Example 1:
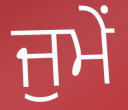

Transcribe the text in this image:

ਜੁਮੇਂ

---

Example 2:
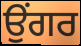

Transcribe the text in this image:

ਉਂਗਰ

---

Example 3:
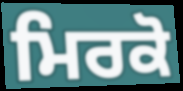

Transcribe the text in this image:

ਮਿਰਕੋ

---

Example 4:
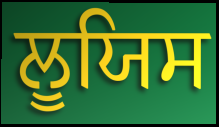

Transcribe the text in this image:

ਲੂਯਿਸ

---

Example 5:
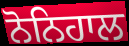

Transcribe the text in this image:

ਨੋਨਿਹਾਲ